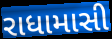
રાધામાસી